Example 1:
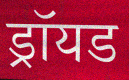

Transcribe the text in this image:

ड्रॉयड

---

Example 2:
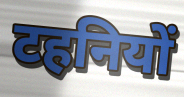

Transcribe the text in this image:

टहनियों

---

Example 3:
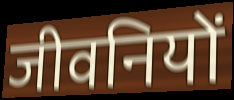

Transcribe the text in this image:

जीवनियों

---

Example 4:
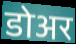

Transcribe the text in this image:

डोअर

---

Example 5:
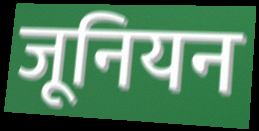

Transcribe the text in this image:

जूनियन